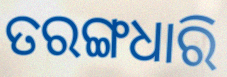
ତରଙ୍ଗଧାରି